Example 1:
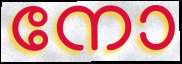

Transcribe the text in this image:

നോ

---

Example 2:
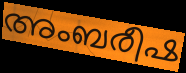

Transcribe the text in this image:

അംബരീഷ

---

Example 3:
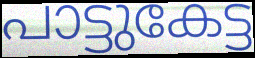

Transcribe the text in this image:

പാട്ടുകേട്ട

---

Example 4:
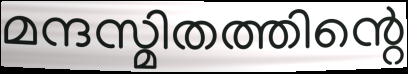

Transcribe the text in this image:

മന്ദസ്മിതത്തിന്റെ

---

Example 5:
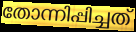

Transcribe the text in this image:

തോന്നിപ്പിച്ചത്